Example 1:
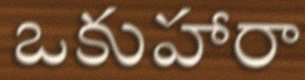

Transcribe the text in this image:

ఒకుహారా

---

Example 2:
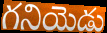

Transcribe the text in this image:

గనియెడు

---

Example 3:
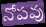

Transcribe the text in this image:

నోపవు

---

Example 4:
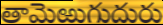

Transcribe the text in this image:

తామెఱుగుదురు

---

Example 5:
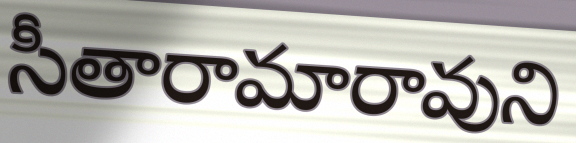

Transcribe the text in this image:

సీతారామారావుని